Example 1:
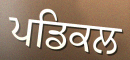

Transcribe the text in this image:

ਪਡਿਕਲ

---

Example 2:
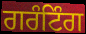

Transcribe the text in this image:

ਗਰੰਟਿੰਗ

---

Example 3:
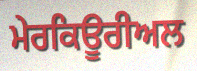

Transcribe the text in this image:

ਮੇਰਕਿਊਰੀਅਲ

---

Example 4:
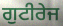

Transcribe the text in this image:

ਗੁਟੀਰੇਜ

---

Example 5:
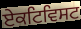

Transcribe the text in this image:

ਏਕਟਿਵਿਸਟ